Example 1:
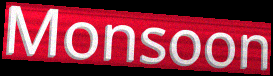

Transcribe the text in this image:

Monsoon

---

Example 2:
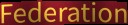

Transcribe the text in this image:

Federation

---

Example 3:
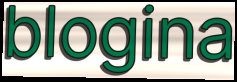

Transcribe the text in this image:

blogina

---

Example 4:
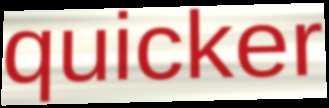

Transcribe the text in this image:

quicker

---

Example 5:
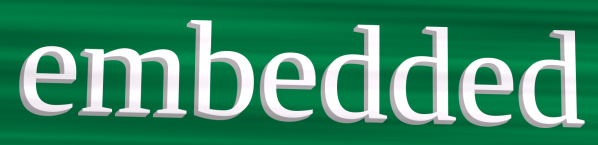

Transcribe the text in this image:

embedded